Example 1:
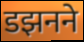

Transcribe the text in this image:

डझनने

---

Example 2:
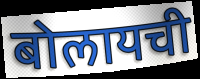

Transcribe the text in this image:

बोलायची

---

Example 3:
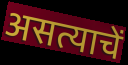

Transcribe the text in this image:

असत्याचें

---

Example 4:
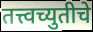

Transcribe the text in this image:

तत्त्वच्युतीचे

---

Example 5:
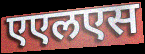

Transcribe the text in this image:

एएलएस